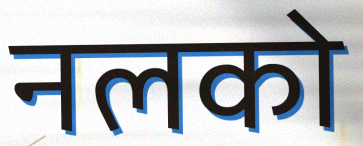
नलको